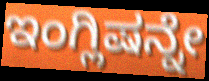
ಇಂಗ್ಲಿಷನ್ನೇ